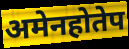
अमेनहोतेप